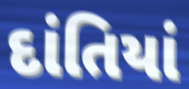
દાંતિયાં